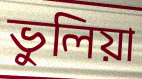
ভুলিয়া